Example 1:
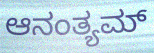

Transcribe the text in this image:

ಆನಂತ್ಯಮ್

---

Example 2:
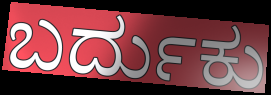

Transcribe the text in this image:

ಬರ್ದುಕು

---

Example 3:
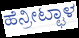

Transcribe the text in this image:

ಹೆನ್ರೀಟ್ಟಾಳ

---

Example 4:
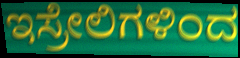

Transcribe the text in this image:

ಇಸ್ರೇಲಿಗಳಿಂದ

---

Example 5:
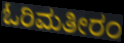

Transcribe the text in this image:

ಓರಿಮತೀರಂ